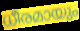
ധീരമായും